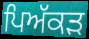
ਪਿਅੱਕੜ